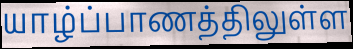
யாழ்ப்பாணத்திலுள்ள